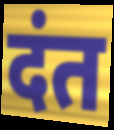
दंत